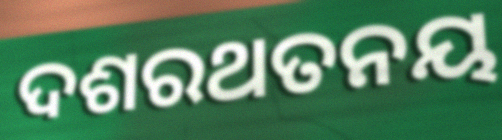
ଦଶରଥତନୟ